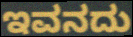
ಇವನದು